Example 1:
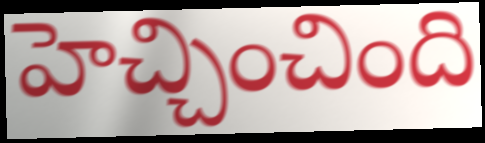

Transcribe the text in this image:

హెచ్చించింది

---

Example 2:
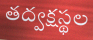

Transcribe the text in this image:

తద్వక్షస్థల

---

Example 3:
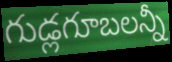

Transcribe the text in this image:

గుడ్లగూబలన్నీ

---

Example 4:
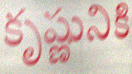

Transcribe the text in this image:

కృష్ణునికి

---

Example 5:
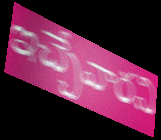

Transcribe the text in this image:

ఇచ్చేవారని